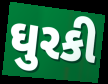
ઘુરકી